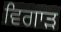
ਵਿਗਾਡ਼